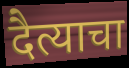
दैत्याचा